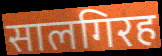
सालगिरह